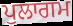
ਪੁਲਾਗਮ